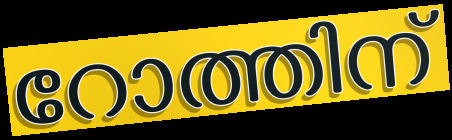
റോത്തിന്